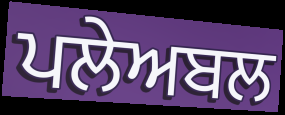
ਪਲੇਅਬਲ